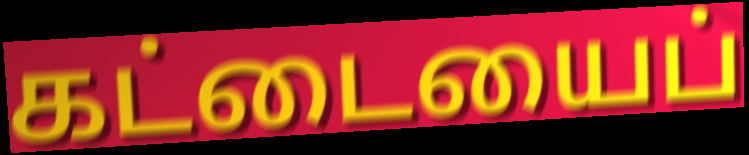
கட்டையைப்